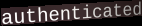
authenticated